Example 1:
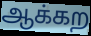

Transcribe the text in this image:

ஆக்கற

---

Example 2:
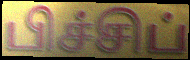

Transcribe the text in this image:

பிச்சிப்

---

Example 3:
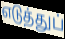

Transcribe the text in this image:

எடுத்துப்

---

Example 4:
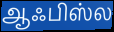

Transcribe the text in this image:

ஆஃபிஸ்ல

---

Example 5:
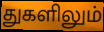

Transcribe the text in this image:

துகளிலும்